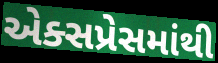
એક્સપ્રેસમાંથી